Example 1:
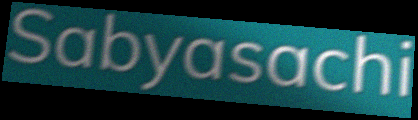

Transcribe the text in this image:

Sabyasachi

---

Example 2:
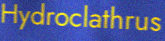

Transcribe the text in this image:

Hydroclathrus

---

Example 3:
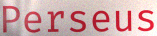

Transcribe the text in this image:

Perseus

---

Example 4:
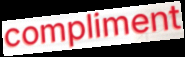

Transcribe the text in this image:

compliment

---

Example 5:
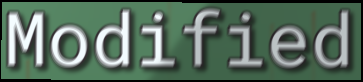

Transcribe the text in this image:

Modified